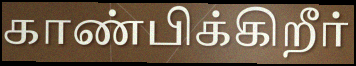
காண்பிக்கிறீர்